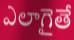
ఎలాగైతే